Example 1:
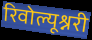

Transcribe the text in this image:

रिवोल्यूश्नरी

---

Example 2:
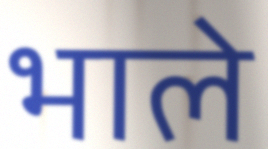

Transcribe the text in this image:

भाले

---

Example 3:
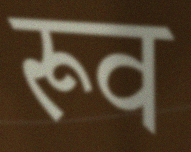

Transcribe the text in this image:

रूव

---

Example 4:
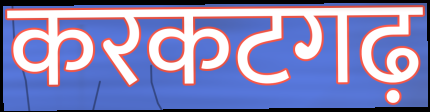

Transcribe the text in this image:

करकटगढ़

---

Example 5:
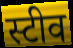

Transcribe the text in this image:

स्टीव